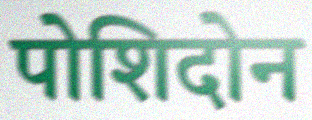
पोशिदोन